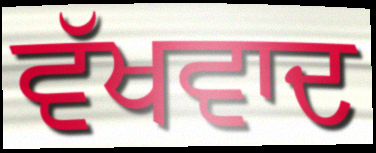
ਵੱਖਵਾਦ